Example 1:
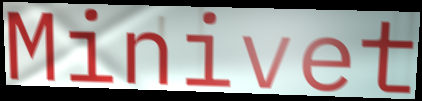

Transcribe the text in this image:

Minivet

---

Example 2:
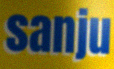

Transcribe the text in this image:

sanju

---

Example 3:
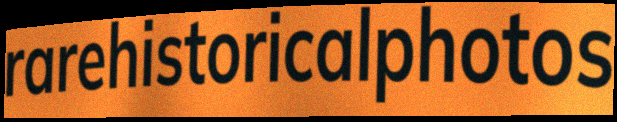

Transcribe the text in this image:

rarehistoricalphotos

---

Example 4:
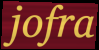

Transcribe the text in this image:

jofra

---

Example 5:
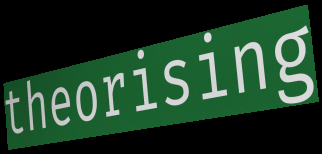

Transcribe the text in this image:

theorising